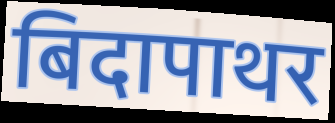
बिदापाथर